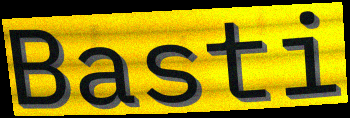
Basti